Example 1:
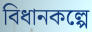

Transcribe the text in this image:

বিধানকল্পে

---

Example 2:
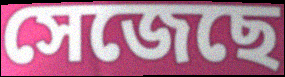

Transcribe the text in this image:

সেজেছে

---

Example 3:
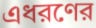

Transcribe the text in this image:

এধরণের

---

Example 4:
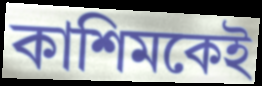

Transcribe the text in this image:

কাশিমকেই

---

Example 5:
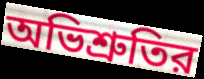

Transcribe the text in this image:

অভিশ্রুতির